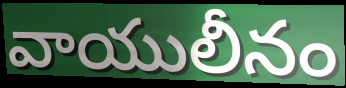
వాయులీనం